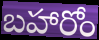
బహారోం